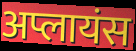
अप्लायंस